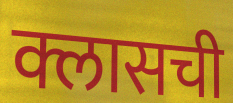
क्‍लासची